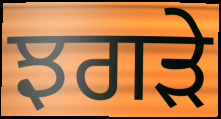
ਝਗਡ਼ੇ